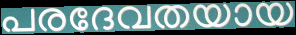
പരദേവതയായ